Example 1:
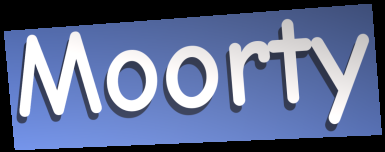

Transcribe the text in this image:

Moorty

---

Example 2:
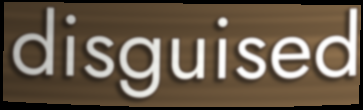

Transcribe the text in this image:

disguised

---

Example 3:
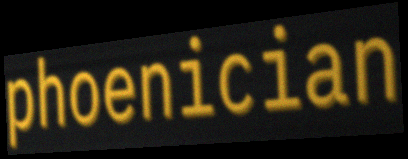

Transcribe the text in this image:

phoenician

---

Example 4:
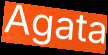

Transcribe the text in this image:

Agata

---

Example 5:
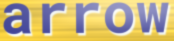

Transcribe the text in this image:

arrow